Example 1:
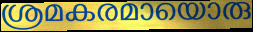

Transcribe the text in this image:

ശ്രമകരമായൊരു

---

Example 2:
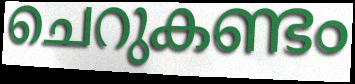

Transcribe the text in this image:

ചെറുകണ്ടം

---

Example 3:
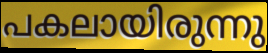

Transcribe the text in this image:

പകലായിരുന്നു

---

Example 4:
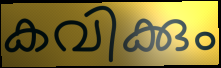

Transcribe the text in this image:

കവിക്കും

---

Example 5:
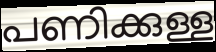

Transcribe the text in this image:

പണിക്കുള്ള